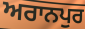
ਅਰਾਨਪੁਰ